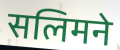
सलिमने